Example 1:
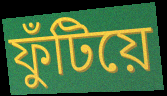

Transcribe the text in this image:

ফুঁটিয়ে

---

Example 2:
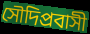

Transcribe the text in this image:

সৌদিপ্রবাসী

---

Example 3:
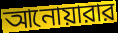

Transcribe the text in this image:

আনোয়ারার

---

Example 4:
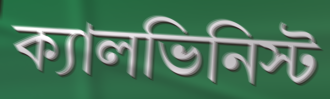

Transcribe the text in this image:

ক্যালভিনিস্ট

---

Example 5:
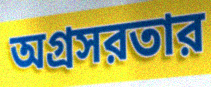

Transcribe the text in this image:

অগ্রসরতার